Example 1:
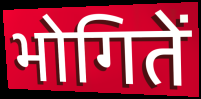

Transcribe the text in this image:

भोगितें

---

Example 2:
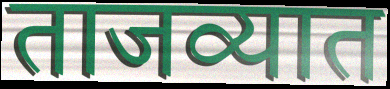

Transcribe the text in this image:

ताजव्यात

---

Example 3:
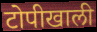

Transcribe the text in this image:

टोपीखाली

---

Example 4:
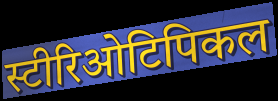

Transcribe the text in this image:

स्टीरिओटिपिकल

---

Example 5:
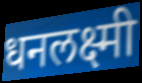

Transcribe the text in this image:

धनलक्ष्मी